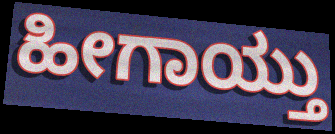
ಹೀಗಾಯ್ತು